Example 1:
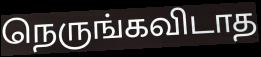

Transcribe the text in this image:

நெருங்கவிடாத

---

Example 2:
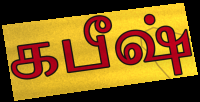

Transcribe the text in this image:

கபீஷ்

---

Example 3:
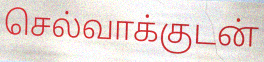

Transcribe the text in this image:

செல்வாக்குடன்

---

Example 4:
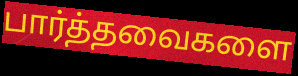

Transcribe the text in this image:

பார்த்தவைகளை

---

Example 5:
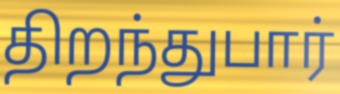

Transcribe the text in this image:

திறந்துபார்